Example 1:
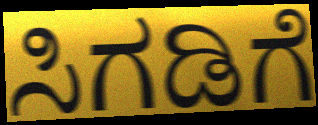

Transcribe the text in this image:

ಸಿಗಡಿಗೆ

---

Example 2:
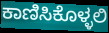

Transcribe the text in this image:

ಕಾಣಿಸಿಕೊಳ್ಳಲಿ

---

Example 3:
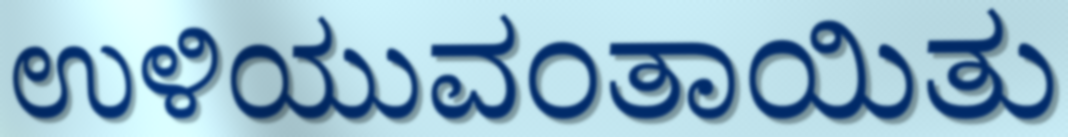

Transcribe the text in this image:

ಉಳಿಯುವಂತಾಯಿತು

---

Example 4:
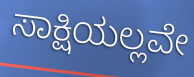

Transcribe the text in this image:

ಸಾಕ್ಷಿಯಲ್ಲವೇ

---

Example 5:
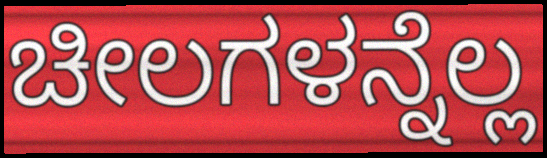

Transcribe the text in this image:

ಚೀಲಗಳನ್ನೆಲ್ಲ